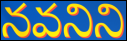
నవనిని